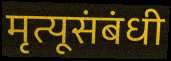
मृत्यूसंबंधी